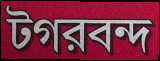
টগরবন্দ